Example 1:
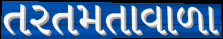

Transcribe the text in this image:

તરતમતાવાળા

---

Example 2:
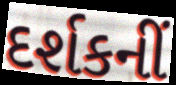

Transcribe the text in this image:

દર્શકનીં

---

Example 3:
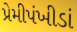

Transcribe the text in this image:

પ્રેમીપંખીડાં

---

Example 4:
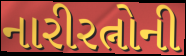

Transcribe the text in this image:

નારીરત્નોની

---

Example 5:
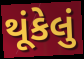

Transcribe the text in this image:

થૂંકેલું